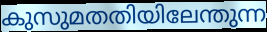
കുസുമതതിയിലേന്തുന്ന